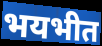
भयभीत